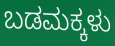
ಬಡಮಕ್ಕಳು